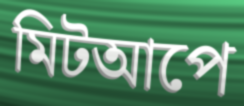
মিটআপে